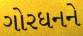
ગોરધનને